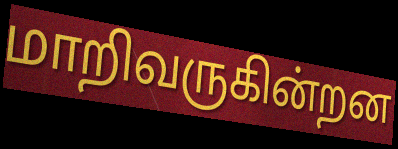
மாறிவருகின்றன